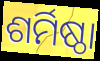
ଶର୍ମିଷ୍ଠା